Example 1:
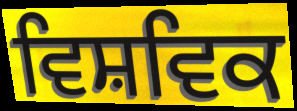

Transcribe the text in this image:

ਵਿਸ਼ਵਿਕ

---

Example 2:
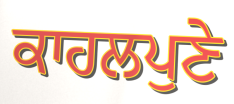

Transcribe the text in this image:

ਕਾਹਲਪੁਣੇ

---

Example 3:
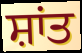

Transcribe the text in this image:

ਸ਼ਾਂਤ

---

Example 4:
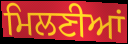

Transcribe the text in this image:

ਮਿਲਣੀਆਂ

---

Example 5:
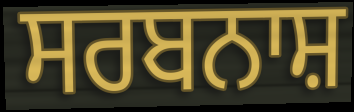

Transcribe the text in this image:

ਸਰਬਨਾਸ਼